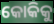
କୋକିକୁ